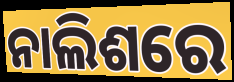
ନାଲିଶରେ